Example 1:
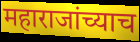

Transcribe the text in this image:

महाराजांच्याच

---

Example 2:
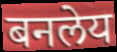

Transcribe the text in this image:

बनलेय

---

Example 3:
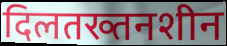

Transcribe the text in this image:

दिलतख्तनशीन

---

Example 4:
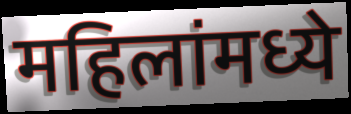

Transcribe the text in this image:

महिलांमध्ये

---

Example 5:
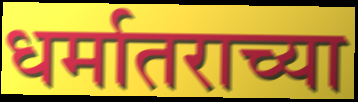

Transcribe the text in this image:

धर्मातराच्या